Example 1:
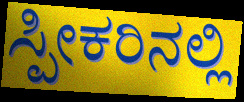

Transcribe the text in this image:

ಸ್ಪೀಕರಿನಲ್ಲಿ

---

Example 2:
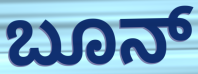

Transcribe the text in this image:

ಬೂನ್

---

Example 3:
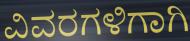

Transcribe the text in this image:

ವಿವರಗಳಿಗಾಗಿ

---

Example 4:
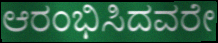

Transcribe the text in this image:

ಆರಂಭಿಸಿದವರೇ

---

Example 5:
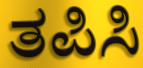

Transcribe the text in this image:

ತಪಿಸಿ